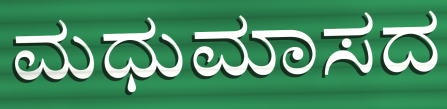
ಮಧುಮಾಸದ